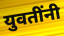
युवतींनी